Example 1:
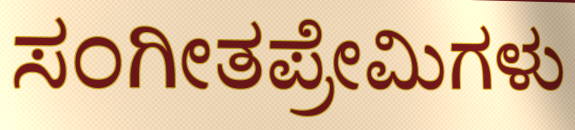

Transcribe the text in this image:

ಸಂಗೀತಪ್ರೇಮಿಗಳು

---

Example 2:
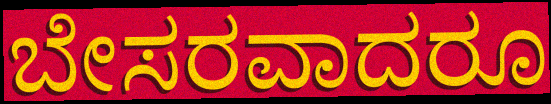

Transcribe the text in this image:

ಬೇಸರವಾದರೂ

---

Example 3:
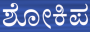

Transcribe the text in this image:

ಶೋಕಿಪ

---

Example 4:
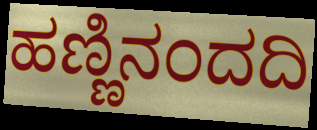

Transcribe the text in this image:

ಹಣ್ಣಿನಂದದಿ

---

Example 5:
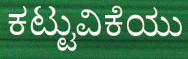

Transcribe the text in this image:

ಕಟ್ಟುವಿಕೆಯು